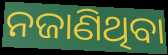
ନଜାଣିଥିବା